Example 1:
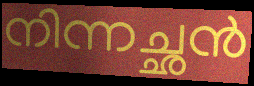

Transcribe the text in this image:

നിന്നച്ഛൻ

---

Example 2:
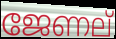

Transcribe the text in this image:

ജേണല്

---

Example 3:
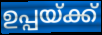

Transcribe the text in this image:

ഉപ്പയ്ക്ക്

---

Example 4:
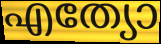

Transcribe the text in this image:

എത്യോ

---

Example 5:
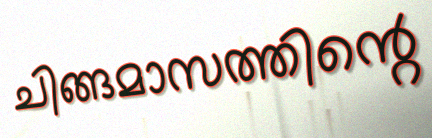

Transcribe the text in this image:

ചിങ്ങമാസത്തിന്റെ